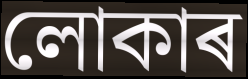
লোকাৰ